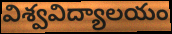
విశ్వవిద్యాలయం